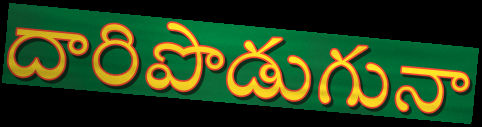
దారిపొడుగునా